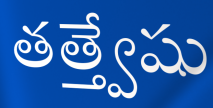
తత్త్వేషు